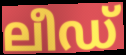
ലീഡ്